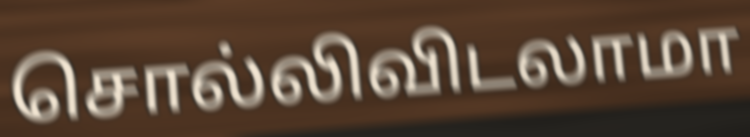
சொல்லிவிடலாமா